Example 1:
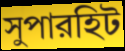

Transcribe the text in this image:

সুপারহিট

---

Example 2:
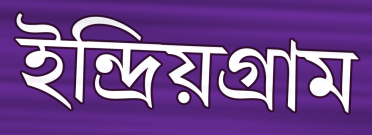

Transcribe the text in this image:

ইন্দ্রিয়গ্রাম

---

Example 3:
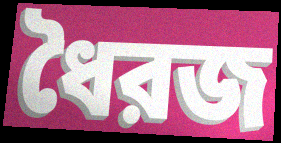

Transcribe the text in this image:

ধৈরজ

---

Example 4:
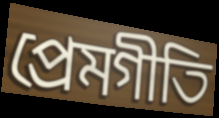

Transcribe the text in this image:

প্রেমগীতি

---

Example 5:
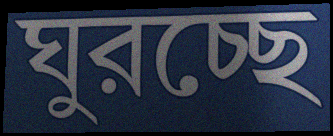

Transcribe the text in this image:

ঘুরচ্ছে